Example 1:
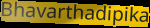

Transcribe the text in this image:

Bhavarthadipika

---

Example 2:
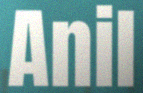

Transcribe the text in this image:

Anil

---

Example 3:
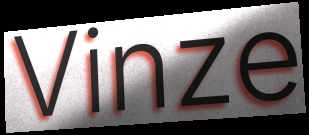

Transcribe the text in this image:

Vinze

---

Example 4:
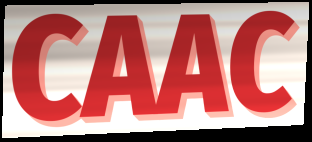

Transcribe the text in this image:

CAAC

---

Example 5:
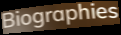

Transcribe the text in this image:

Biographies